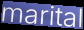
marital